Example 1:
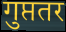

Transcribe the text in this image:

गुप्ततर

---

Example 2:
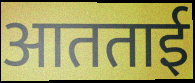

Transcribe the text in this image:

आतताई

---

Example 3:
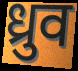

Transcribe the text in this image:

ध्रुव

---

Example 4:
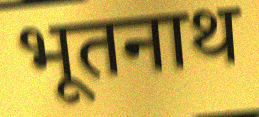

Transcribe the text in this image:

भूतनाथ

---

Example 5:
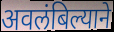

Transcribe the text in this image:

अवलंबिल्याने